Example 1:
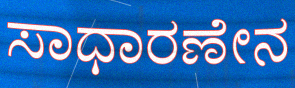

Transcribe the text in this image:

ಸಾಧಾರಣೇನ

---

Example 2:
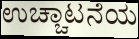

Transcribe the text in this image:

ಉಚ್ಚಾಟನೆಯ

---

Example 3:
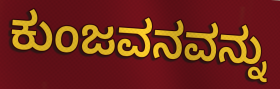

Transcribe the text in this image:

ಕುಂಜವನವನ್ನು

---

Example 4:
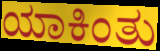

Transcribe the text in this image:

ಯಾಕಿಂತು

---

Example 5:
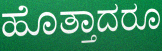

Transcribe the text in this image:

ಹೊತ್ತಾದರೂ